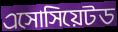
এসোসিয়েটড